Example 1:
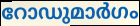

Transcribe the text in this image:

റോഡുമാർഗം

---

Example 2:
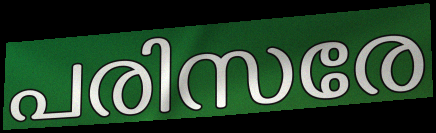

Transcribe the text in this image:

പരിസരേ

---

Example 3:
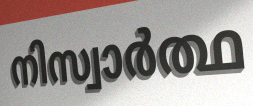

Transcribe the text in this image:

നിസ്വാർത്ഥ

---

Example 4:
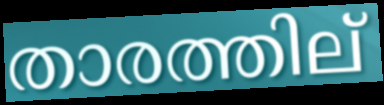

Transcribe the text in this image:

താരത്തില്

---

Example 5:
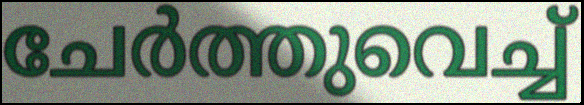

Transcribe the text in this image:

ചേർത്തുവെച്ച്